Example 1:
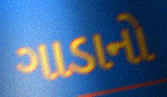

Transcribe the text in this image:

ગાડાનો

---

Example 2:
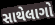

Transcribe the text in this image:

સાથેલાગો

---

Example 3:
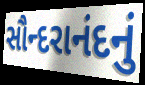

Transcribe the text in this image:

સૌન્દરાનંદનું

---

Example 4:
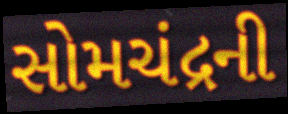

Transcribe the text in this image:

સોમચંદ્રની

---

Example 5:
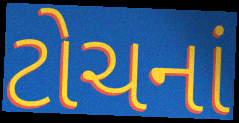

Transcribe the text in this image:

ટોચનાં